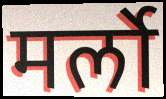
मर्लो